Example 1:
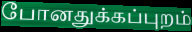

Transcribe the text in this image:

போனதுக்கப்புறம்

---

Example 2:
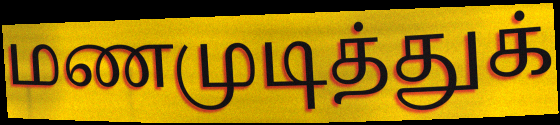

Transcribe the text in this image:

மணமுடித்துக்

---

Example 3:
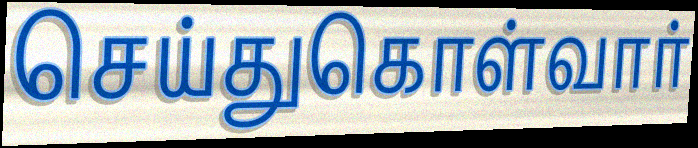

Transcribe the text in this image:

செய்துகொள்வார்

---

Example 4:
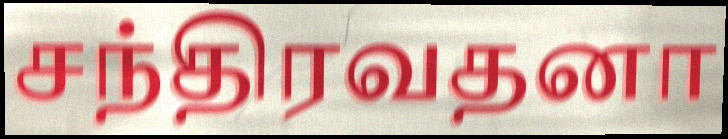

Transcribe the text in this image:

சந்திரவதனா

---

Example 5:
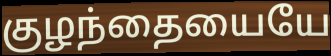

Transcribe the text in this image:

குழந்தையையே